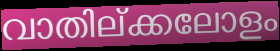
വാതില്ക്കലോളം